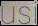
usi